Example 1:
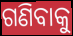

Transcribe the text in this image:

ଗଣିବାକୁ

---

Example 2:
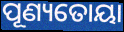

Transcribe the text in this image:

ପୂଣ୍ୟତୋୟା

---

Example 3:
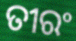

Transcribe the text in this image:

ତୀରଂ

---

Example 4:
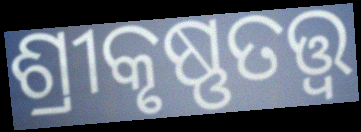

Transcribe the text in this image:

ଶ୍ରୀକୃଷ୍ଣତତ୍ତ୍ଵ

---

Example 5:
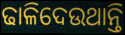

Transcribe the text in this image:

ଢାଳିଦେଉଥାନ୍ତି